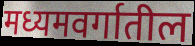
मध्यमवर्गातील